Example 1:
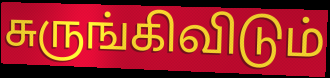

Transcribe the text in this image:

சுருங்கிவிடும்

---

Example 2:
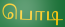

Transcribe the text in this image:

பொடி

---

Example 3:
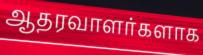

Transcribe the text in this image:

ஆதரவாளர்களாக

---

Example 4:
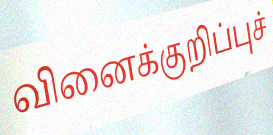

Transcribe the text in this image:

வினைக்குறிப்புச்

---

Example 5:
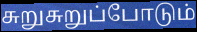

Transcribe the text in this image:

சுறுசுறுப்போடும்